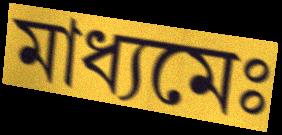
মাধ্যমেঃ